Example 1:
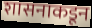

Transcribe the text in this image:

शासनाकडून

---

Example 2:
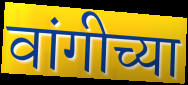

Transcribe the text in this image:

वांगीच्या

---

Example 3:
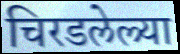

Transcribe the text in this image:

चिरडलेल्या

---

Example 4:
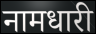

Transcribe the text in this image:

नामधारी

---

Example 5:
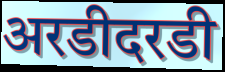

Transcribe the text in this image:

अरडीदरडी